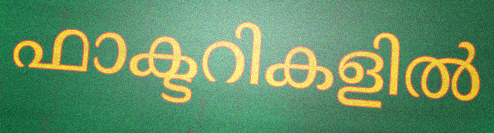
ഫാക്ടറികളിൽ